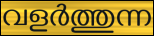
വളർത്തുന്ന